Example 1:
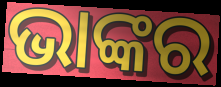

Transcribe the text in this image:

ଭାଙ୍କର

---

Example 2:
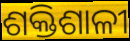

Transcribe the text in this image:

ଶକ୍ତିଶାଳୀ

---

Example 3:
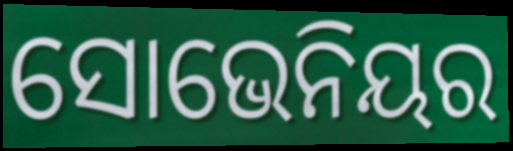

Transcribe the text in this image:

ସୋଭେନିୟର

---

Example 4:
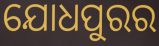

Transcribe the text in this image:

ଯୋଧପୁରର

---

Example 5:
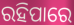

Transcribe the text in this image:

ରହିପାରେ